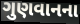
ગુણવાનના